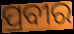
ପ୍ରବୀର